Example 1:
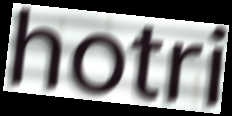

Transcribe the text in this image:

hotri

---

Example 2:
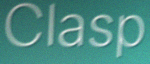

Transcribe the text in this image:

Clasp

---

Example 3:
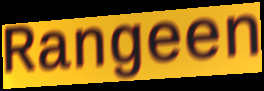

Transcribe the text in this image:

Rangeen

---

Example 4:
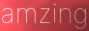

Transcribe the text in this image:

amzing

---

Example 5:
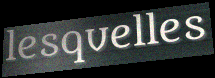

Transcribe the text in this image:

lesquelles